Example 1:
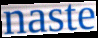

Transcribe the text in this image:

naste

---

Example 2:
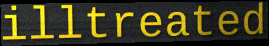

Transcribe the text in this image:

illtreated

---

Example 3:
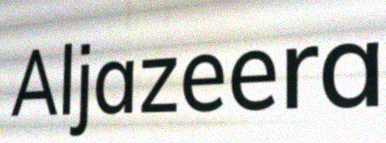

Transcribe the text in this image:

Aljazeera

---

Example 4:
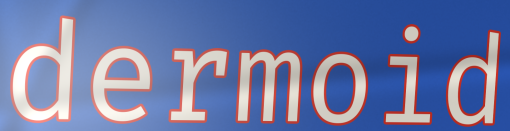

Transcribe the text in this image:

dermoid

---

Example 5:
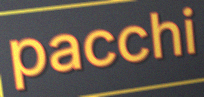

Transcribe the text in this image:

pacchi